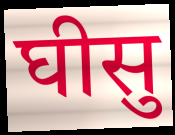
घीसु